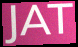
JAT